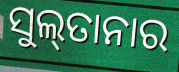
ସୁଲ୍‌ତାନାର